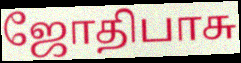
ஜோதிபாசு